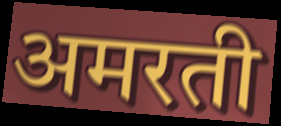
अमरती